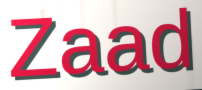
Zaad